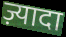
ज़्यादा